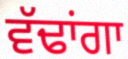
ਵੱਢਾਂਗਾ